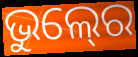
ଭୁଲ୍‍ରେ